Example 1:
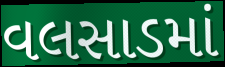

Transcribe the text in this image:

વલસાડમાં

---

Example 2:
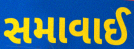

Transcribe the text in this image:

સમાવાઈ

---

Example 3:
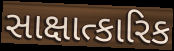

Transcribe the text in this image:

સાક્ષાત્કારિક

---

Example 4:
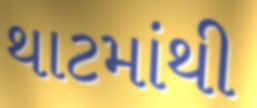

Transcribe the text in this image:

થાટમાંથી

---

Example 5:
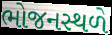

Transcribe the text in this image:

ભોજનસ્થળે